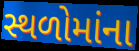
સ્થળોમાંના